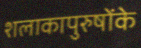
शलाकापुरुषोंके